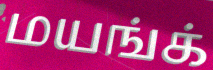
மயங்க்